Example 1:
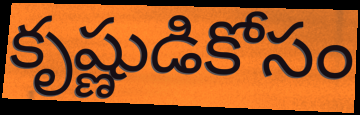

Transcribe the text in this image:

కృష్ణుడికోసం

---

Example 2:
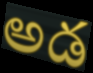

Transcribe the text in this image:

అడ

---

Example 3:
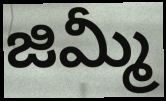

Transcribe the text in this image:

జిమ్మీ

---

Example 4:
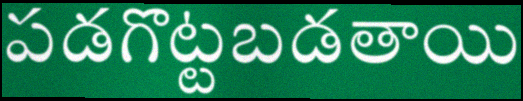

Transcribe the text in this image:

పడగొట్టబడతాయి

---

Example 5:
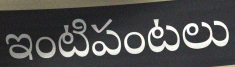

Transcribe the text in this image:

ఇంటిపంటలు